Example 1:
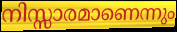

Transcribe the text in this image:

നിസ്സാരമാണെന്നും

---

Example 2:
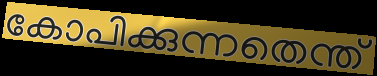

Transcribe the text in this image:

കോപിക്കുന്നതെന്ത്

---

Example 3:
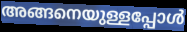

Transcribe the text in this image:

അങ്ങനെയുള്ളപ്പോൾ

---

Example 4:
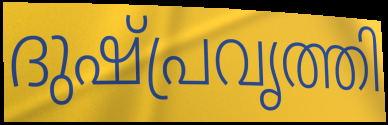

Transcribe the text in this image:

ദുഷ്പ്രവൃത്തി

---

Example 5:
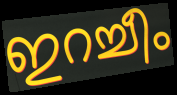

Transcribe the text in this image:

ഇറച്ചീം